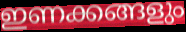
ഇണക്കങ്ങളും